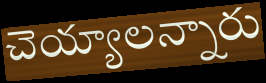
చెయ్యాలన్నారు